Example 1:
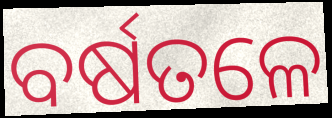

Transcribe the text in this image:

ବର୍ଷତଳେ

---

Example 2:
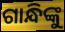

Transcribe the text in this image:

ଗାନ୍ଧିଙ୍କୁ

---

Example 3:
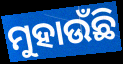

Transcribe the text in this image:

ମୁହାଉଁଛି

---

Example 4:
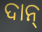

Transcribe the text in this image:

ଦାନ୍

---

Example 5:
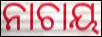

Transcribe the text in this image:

ନାଚାୟ